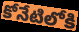
కోనేటిలోకి